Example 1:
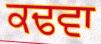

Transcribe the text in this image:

ਕਢਵਾ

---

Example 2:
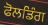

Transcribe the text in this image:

ਫੋਲਡਿੰਗ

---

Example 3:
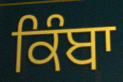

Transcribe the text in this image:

ਕਿੰਬਾ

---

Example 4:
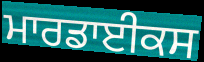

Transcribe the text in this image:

ਮਾਰਡਾਈਕਸ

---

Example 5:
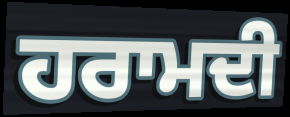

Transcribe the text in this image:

ਹਰਾਮਦੀ